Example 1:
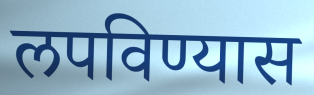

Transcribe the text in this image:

लपविण्यास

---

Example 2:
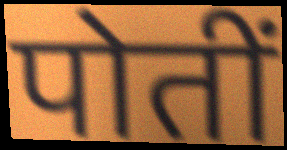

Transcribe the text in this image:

पोतीं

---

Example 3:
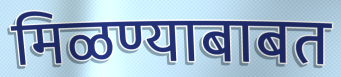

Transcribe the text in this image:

मिळण्याबाबत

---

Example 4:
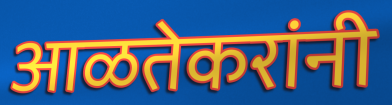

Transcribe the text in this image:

आळतेकरांनी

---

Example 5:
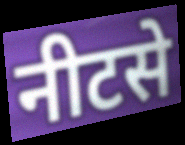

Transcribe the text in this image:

नीटसे